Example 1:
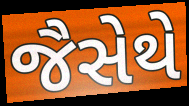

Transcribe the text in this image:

જૈસેથે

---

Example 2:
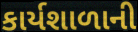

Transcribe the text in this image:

કાર્યશાળાની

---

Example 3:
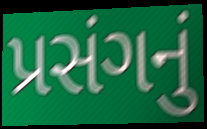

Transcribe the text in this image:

પ્રસંગનું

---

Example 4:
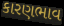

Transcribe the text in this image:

કારણભાવ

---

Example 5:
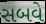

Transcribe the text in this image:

સબવે